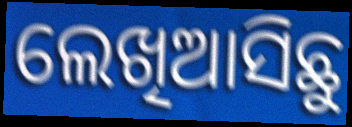
ଲେଖିଆସିଛୁ